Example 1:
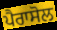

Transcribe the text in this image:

ਪੈਰਾਸੋਲ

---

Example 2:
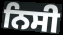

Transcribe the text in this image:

ਨਿਸੀ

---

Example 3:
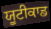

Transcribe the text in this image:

ਯੂਟੀਕਾਡ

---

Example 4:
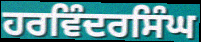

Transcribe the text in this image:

ਹਰਵਿੰਦਰਸਿੰਘ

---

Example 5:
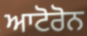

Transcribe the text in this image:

ਆਟੋਰੋਨ